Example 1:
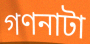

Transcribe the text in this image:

গণনাটা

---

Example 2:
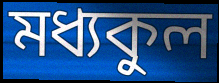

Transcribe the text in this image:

মধ্যকুল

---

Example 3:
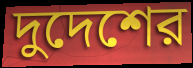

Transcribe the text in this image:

দুদেশের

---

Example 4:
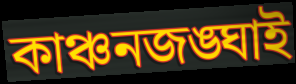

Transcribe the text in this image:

কাঞ্চনজঙ্ঘাই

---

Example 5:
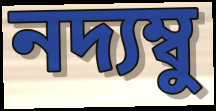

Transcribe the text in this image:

নদ্যম্বু